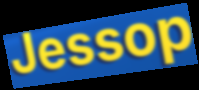
Jessop